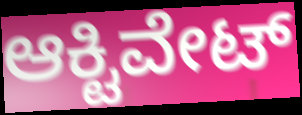
ಆಕ್ಟಿವೇಟ್